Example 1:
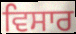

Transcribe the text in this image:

ਵਿਸਾਰ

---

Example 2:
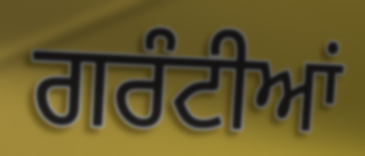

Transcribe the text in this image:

ਗਰੰਟੀਆਂ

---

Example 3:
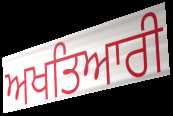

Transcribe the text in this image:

ਅਖਤਿਆਰੀ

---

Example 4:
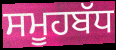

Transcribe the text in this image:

ਸਮੂਹਬੱਧ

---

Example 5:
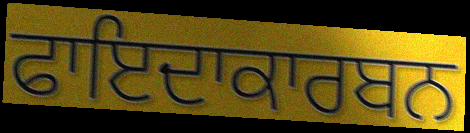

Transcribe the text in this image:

ਫਾਇਦਾਕਾਰਬਨ